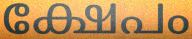
ക്ഷേപം